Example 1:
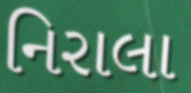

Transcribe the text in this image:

નિરાલા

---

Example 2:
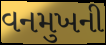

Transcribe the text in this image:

વનમુખની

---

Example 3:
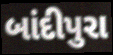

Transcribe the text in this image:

બાંદીપુરા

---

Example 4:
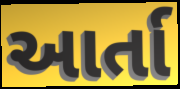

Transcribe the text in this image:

આર્તા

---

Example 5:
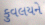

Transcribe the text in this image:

કુવલયને